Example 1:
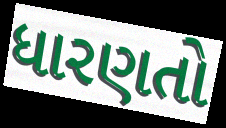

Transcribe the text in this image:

ધારણતો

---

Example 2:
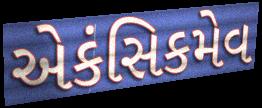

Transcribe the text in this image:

એકંસિકમેવ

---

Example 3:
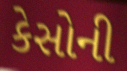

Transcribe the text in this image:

કેસોની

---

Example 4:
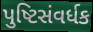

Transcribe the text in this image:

પુષ્ટિસંવર્ધક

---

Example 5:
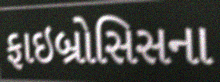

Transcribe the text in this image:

ફાઇબ્રોસિસના